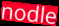
nodle